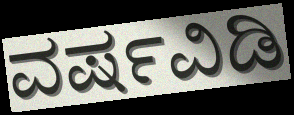
ವರ್ಷವಿಡಿ